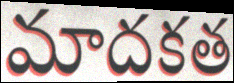
మాదకత